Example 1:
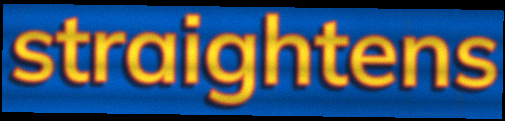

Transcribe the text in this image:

straightens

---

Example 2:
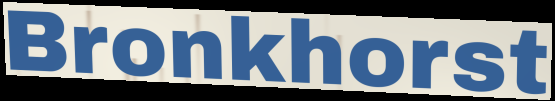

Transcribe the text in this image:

Bronkhorst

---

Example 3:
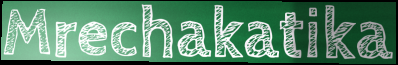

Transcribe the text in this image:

Mrechakatika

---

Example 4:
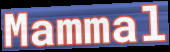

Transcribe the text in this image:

Mammal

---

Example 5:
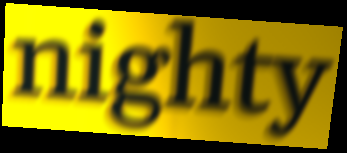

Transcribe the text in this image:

nighty